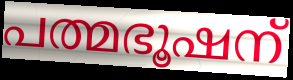
പത്മഭൂഷന്